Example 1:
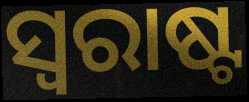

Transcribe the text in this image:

ସ୍ୱରାଷ୍ଟ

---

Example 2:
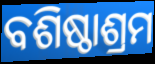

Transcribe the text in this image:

ବଶିଷ୍ଠାଶ୍ରମ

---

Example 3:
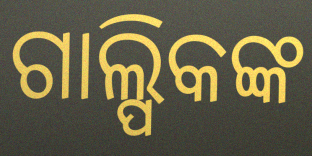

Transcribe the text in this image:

ଗାଲ୍ପିକଙ୍କ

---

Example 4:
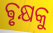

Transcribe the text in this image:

ଵୃକ୍ଷକୁ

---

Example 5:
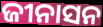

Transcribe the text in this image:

ଜୀନାସନ